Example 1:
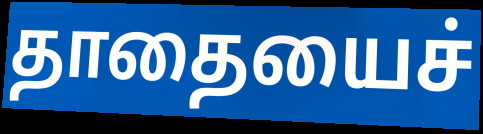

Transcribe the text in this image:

தாதையைச்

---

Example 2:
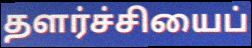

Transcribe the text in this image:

தளர்ச்சியைப்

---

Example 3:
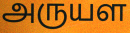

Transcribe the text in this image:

அருயள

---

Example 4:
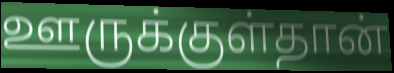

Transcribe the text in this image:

ஊருக்குள்தான்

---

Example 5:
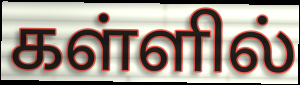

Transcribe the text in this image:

கள்ளில்